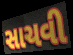
સાચવી